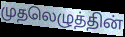
முதலெழுத்தின்